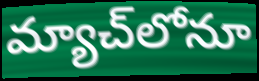
మ్యాచ్‌లోనూ